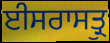
ਈਸਰਾਸਤ੍ਰੁ